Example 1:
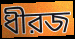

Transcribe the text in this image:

ধীরজ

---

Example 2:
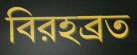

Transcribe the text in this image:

বিরহব্রত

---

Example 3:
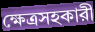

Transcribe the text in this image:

ক্ষেত্রসহকারী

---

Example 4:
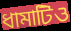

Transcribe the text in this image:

ধামাটিও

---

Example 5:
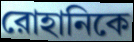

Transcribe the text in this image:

রোহানিকে